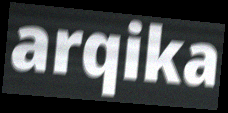
arqika